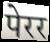
पेरर